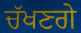
ਚੱਖਣਗੇ